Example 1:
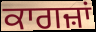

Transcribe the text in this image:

ਕਾਗਜ਼ਾਂ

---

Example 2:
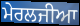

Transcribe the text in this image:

ਮੇਰਲਜੀਆ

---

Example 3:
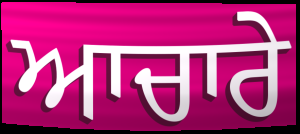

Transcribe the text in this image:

ਆਚਾਰੇ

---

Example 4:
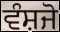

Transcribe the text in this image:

ਵੰਸ਼ਜੋ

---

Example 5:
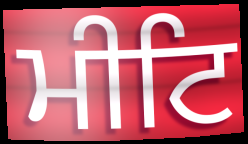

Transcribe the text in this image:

ਮੀਟਿ